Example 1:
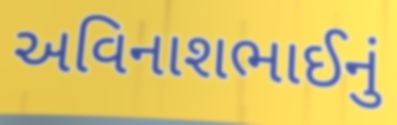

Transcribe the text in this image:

અવિનાશભાઈનું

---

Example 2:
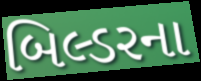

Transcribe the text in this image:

બિલ્ડરના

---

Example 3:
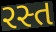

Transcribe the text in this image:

રસ્ત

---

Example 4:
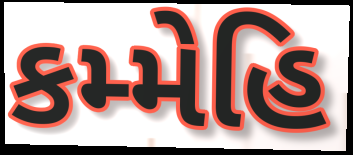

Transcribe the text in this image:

કમ્મેહિ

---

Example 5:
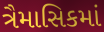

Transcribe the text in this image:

ત્રૈમાસિકમાં